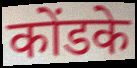
कोंडके